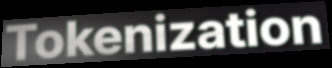
Tokenization